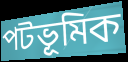
পটভূমিক